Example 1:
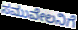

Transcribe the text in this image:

ಸಮುವೇಲನಿಗೆ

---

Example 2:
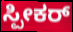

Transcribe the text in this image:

ಸ್ಪೀಕರ್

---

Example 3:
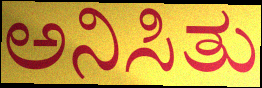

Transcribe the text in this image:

ಅನಿಸಿತು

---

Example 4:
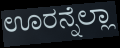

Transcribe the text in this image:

ಊರನ್ನೆಲ್ಲಾ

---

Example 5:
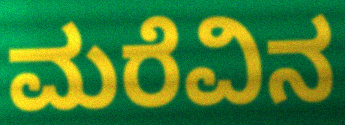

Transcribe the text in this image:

ಮರೆವಿನ